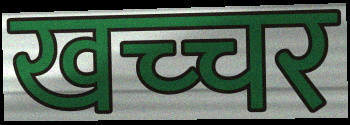
खच्‍चर